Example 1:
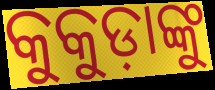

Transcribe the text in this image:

କୁକୁଡ଼ାଙ୍କୁ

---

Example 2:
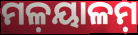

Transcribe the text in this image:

ମଳ଼ୟାଳମ଼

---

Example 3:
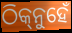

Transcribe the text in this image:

ଠିକ୍‌ନୁହେଁ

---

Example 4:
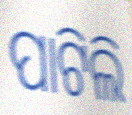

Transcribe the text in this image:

ପାଟିଲି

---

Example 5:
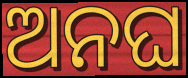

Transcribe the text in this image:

ଅନଘ